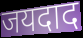
जयदाद